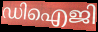
ഡിഐജി